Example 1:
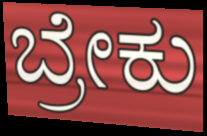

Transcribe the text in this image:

ಬ್ರೇಕು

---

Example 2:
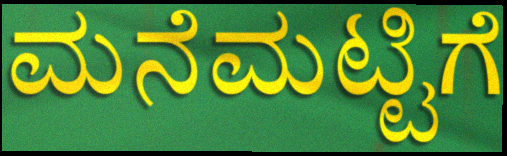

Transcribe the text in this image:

ಮನೆಮಟ್ಟಿಗೆ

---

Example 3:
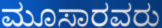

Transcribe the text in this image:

ಮೂಸಾರವರು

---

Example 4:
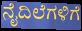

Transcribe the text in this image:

ನೈದಿಲೆಗಳಿಗೆ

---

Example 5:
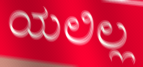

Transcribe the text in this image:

ಯಲಿಲ್ಲ